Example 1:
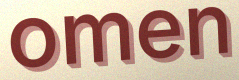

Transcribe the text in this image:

omen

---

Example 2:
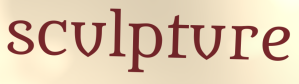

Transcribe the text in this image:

sculpture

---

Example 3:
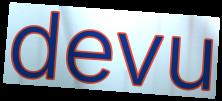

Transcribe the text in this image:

devu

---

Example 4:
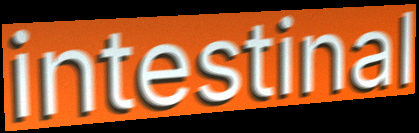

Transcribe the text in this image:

intestinal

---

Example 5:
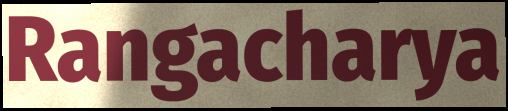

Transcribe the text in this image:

Rangacharya